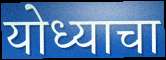
योध्याचा